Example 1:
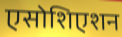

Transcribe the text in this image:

एसोशिएशन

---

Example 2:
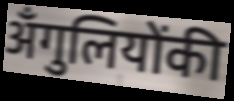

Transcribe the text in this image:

अँगुलियोंकी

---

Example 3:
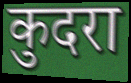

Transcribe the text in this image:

कुदरा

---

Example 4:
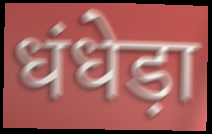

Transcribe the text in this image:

धंधेड़ा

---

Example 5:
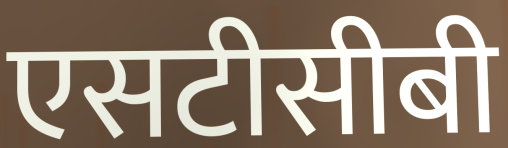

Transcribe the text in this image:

एसटीसीबी